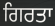
ਗਿਰਤਾ